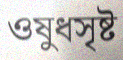
ওষুধসৃষ্ট